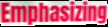
Emphasizing